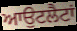
ਆਉਟਲੈਟਾਂ